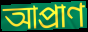
আপ্ৰাণ